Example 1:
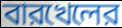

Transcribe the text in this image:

বারখেলের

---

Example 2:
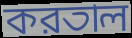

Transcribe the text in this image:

করতাল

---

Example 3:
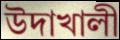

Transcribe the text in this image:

উদাখালী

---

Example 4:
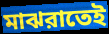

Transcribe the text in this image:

মাঝরাতেই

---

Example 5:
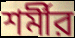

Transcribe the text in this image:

শর্মীর